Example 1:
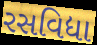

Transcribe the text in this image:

રસવિદ્યા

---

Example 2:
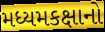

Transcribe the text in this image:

મધ્યમકક્ષાનો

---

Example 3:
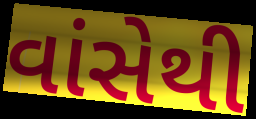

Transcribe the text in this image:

વાંસેથી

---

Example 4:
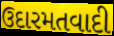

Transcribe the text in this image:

ઉદારમતવાદી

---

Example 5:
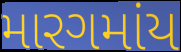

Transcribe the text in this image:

મારગમાંય